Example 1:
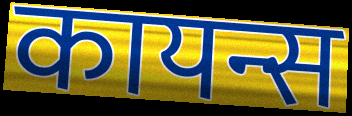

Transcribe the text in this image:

कायन्स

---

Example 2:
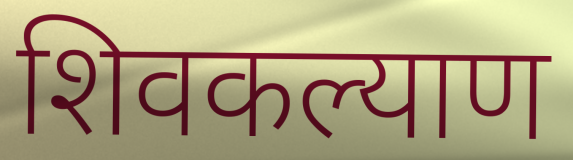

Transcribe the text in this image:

शिवकल्याण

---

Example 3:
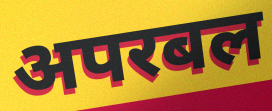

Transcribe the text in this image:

अपरबल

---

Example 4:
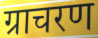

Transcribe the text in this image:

ग्राचरण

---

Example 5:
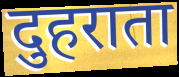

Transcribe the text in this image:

दुहराता